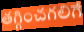
తగ్గించగలిగే